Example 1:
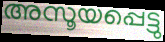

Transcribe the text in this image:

അസൂയപ്പെട്ടു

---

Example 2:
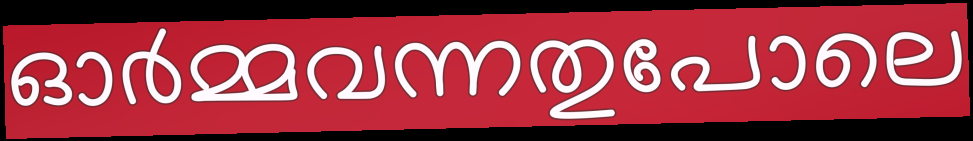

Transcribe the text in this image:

ഓർമ്മവന്നതുപോലെ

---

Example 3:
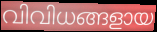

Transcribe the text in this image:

വിവിധങ്ങളായ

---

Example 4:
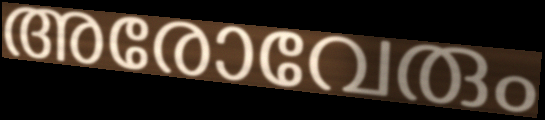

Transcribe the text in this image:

അരോവേരും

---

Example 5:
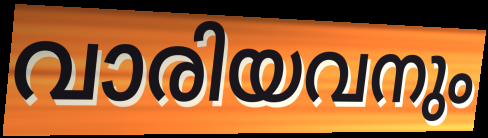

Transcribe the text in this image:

വാരിയവനും